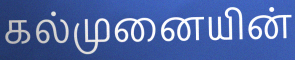
கல்முனையின்